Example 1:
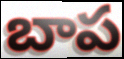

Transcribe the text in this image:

బాప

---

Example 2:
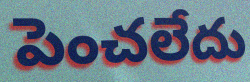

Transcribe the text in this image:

పెంచలేదు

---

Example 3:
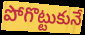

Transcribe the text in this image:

పోగొట్టుకునే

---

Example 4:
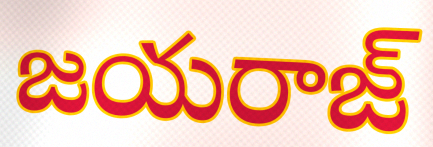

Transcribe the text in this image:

జయరాజ్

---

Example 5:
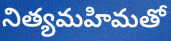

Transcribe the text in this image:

నిత్యమహిమతో